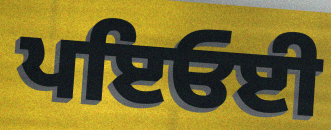
ਪਇਓਈ